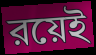
রয়েই